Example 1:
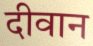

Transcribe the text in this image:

दीवान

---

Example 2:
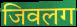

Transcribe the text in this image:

जिवलग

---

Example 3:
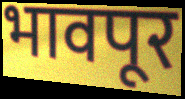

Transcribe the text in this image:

भावपूर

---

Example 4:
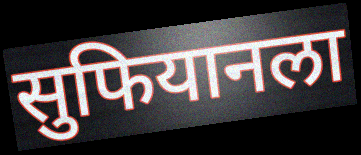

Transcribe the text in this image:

सुफियानला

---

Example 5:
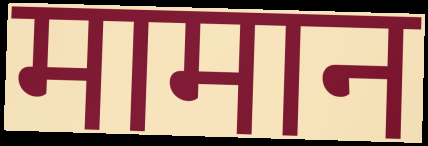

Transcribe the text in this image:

मामान